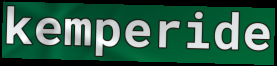
kemperide